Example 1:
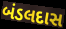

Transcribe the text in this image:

બંડલદાસ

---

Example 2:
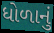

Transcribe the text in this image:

ધોળાનું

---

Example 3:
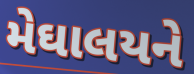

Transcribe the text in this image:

મેઘાલયને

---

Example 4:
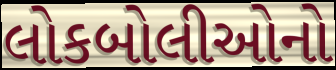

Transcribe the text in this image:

લોકબોલીઓનો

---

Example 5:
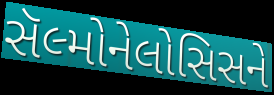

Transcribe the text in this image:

સૅલ્મોનેલોસિસને